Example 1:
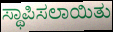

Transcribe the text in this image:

ಸ್ಥಾಪಿಸಲಾಯಿತು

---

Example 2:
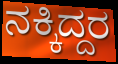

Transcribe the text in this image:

ನಕ್ಕಿದ್ದರ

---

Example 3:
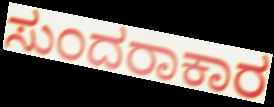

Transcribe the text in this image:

ಸುಂದರಾಕಾರ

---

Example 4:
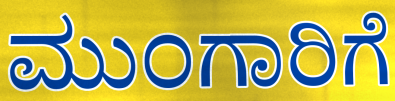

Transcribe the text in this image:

ಮುಂಗಾರಿಗೆ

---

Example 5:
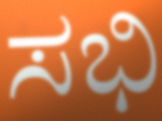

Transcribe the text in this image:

ಸಭಿ